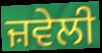
ਜ਼ਵੇਲੀ